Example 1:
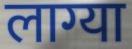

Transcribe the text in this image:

लाग्या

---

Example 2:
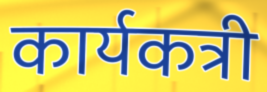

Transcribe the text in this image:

कार्यकत्री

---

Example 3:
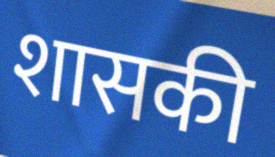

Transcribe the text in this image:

शासकी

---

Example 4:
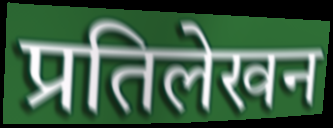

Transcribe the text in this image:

प्रतिलेखन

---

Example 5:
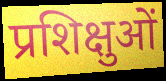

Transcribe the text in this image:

प्रशिक्षुओं